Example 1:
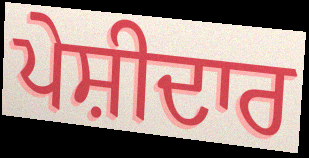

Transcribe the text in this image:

ਪੇਸ਼ੀਦਾਰ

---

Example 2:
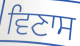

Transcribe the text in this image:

ਵਿਣਾਸ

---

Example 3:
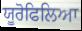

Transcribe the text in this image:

ਯੂਰੋਫਿਲਿਆ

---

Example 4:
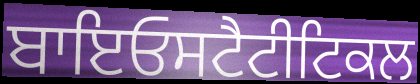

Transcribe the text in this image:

ਬਾਇਓਸਟੈਟੀਟਿਕਲ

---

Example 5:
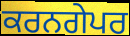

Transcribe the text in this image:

ਕਰਨਗੇਪਰ